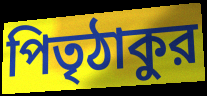
পিতৃঠাকুর